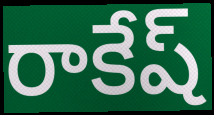
రాకేష్